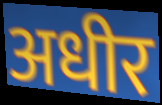
अधीर